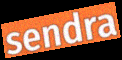
sendra